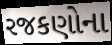
રજકણોના